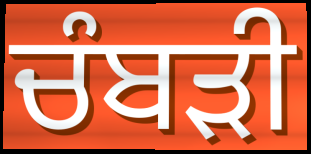
ਚੰਬੜੀ